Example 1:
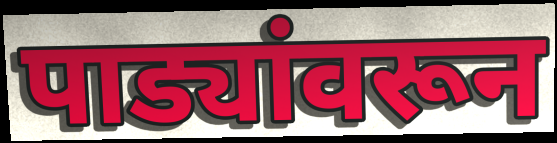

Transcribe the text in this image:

पाड्यांवरून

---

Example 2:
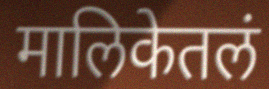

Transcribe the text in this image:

मालिकेतलं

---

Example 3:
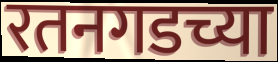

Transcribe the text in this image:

रतनगडच्या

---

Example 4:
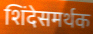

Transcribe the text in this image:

शिंदेसमर्थक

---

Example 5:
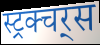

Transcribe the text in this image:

स्ट्रक्चर्स